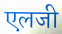
एलजी